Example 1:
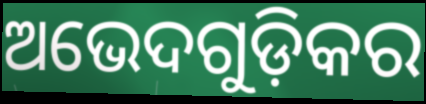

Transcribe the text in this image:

ଅଭେଦଗୁଡ଼ିକର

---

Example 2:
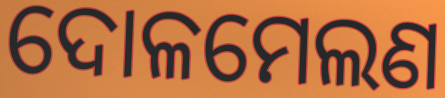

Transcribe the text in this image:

ଦୋଳମେଲଣ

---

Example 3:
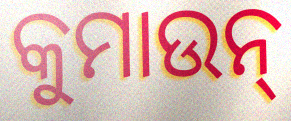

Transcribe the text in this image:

କୁମାଉନ୍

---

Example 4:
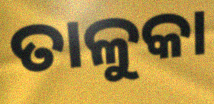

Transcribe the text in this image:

ତାଳୁକା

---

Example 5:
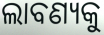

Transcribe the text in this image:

ଲାବଣ୍ୟକୁ